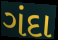
ગંદા